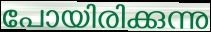
പോയിരിക്കുന്നു